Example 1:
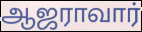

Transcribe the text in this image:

ஆஜராவார்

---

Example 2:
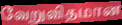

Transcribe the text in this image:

வேறுவிதமான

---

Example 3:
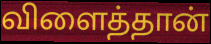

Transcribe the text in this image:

விளைத்தான்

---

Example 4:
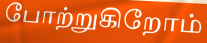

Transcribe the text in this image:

போற்றுகிறோம்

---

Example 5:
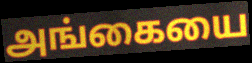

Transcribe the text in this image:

அங்கையை